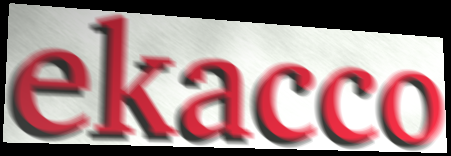
ekacco